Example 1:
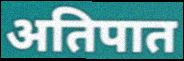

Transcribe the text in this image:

अतिपात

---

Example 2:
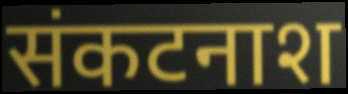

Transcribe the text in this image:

संकटनाश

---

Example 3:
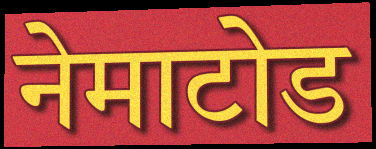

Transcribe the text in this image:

नेमाटोड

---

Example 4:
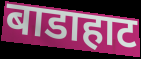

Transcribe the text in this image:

बाडाहाट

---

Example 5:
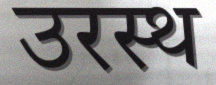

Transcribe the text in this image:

उरस्थ